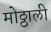
मोठ्ठाली